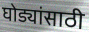
घोड्यांसाठी